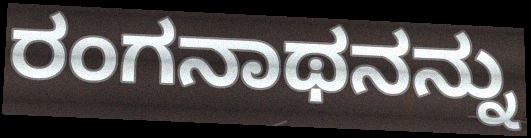
ರಂಗನಾಥನನ್ನು